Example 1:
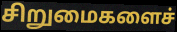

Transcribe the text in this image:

சிறுமைகளைச்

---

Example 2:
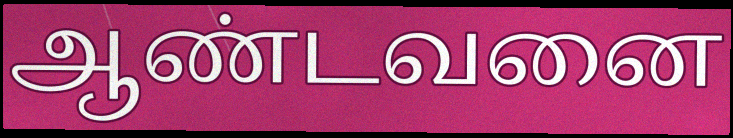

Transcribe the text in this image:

ஆண்டவனை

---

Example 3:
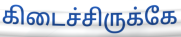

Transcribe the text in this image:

கிடைச்சிருக்கே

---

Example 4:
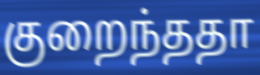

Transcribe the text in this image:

குறைந்ததா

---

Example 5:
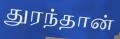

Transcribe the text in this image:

துரந்தான்